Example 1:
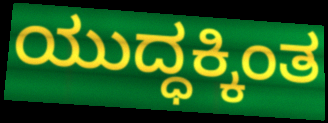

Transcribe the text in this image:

ಯುದ್ಧಕ್ಕಿಂತ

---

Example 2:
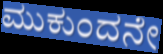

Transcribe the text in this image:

ಮುಕುಂದನೇ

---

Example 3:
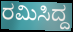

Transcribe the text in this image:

ರಮಿಸಿದ್ದ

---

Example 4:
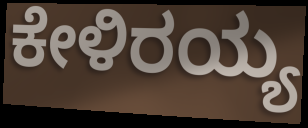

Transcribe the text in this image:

ಕೇಳಿರಯ್ಯ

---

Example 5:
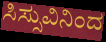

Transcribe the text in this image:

ಸಿಸ್ಸುವಿನಿಂದ